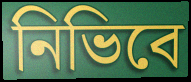
নিভিবে